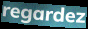
regardez